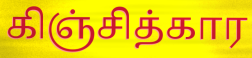
கிஞ்சித்கார